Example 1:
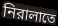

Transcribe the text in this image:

নিরালাতে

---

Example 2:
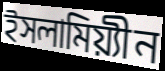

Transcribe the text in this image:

ইসলামিয়্যীন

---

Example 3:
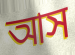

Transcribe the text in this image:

আস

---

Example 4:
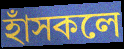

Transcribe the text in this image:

হাঁসকলে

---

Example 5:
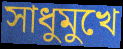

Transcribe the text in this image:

সাধুমুখে